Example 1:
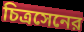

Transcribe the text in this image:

চিত্রসেনের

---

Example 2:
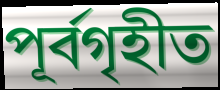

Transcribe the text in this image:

পূর্বগৃহীত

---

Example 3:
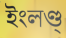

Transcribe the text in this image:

ইংলণ্ড্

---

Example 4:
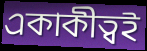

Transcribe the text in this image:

একাকীত্বই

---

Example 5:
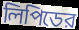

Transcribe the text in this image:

লিপিডের